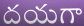
దయగా